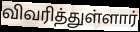
விவரித்துள்ளார்